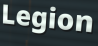
Legion